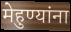
मेहुण्यांना